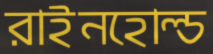
রাইনহোল্ড